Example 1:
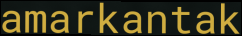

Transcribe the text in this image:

amarkantak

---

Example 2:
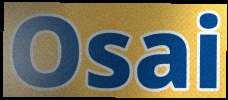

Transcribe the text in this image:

Osai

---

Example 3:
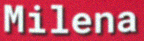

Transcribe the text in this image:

Milena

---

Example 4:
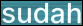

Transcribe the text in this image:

sudah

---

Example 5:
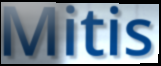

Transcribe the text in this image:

Mitis